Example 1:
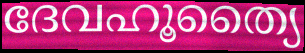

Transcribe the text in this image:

ദേവഹൂത്യൈ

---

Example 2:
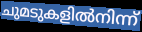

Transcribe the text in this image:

ചുമടുകളിൽനിന്ന്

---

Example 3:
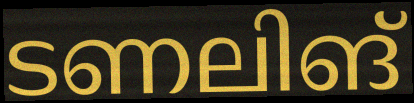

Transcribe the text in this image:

ടണലിങ്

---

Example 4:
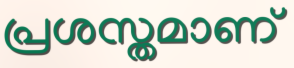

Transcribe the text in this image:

പ്രശസ്തമാണ്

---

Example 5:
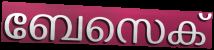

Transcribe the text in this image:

ബേസെക്